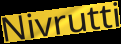
Nivrutti